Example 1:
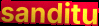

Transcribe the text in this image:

sanditu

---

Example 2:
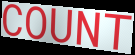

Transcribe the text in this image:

COUNT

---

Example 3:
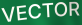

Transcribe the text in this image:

VECTOR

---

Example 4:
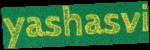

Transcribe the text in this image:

yashasvi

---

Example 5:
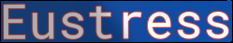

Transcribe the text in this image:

Eustress